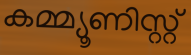
കമ്മ്യൂണിസ്റ്റ്